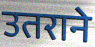
उतराने